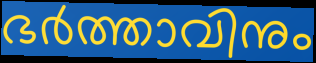
ഭർത്താവിനും